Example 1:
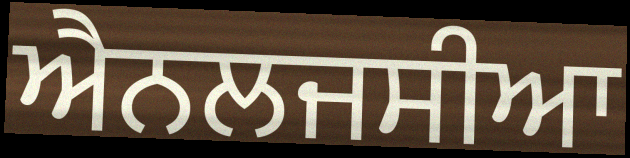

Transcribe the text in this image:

ਐਨਲਜਸੀਆ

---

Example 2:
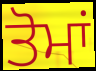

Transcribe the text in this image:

ਤੋਮਾਂ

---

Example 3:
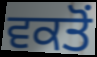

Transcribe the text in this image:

ਵਕਤੋਂ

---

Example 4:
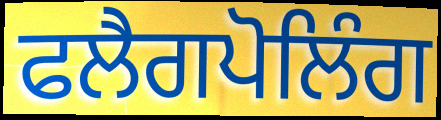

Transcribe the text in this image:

ਫਲੈਗਪੋਲਿੰਗ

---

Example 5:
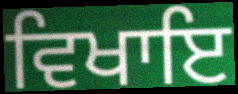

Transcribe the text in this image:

ਵਿਖਾਇ